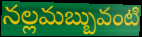
నల్లమబ్బువంటి